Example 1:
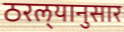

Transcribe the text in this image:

ठरल्यानुसार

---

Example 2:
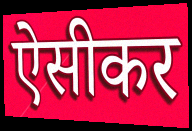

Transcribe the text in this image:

ऐसीकर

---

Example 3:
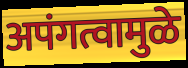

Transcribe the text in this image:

अपंगत्वामुळे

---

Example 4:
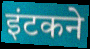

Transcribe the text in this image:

इंटकने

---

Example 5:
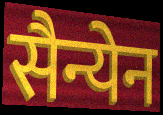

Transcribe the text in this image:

सैन्येन